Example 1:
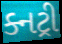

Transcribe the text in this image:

ક્નટ્રી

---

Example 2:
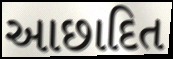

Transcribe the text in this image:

આછાદિત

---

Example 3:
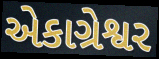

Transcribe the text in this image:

એકાગ્રેશ્વર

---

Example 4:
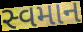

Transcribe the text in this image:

સ્વમાન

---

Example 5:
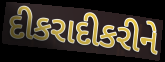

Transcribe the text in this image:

દીકરાદીકરીને